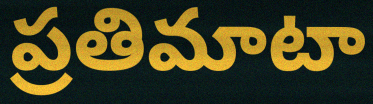
ప్రతిమాటా